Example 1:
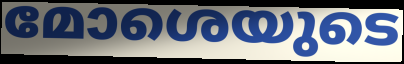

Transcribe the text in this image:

മോശെയുടെ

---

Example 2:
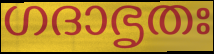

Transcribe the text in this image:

ഗദാഭൃതഃ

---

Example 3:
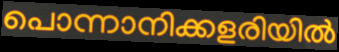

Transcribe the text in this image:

പൊന്നാനിക്കളരിയിൽ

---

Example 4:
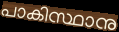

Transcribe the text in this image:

പാകിസ്ഥാനു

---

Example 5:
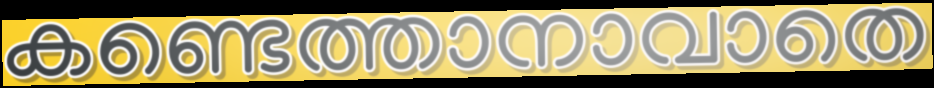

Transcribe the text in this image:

കണ്ടെത്താനാവാതെ